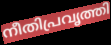
നീതിപ്രവൃത്തി